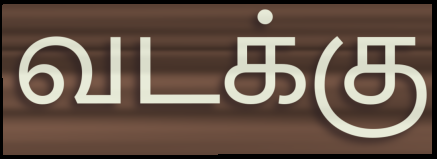
வடக்கு